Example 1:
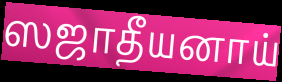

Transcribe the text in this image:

ஸஜாதீயனாய்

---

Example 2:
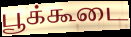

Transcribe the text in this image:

பூக்கூடை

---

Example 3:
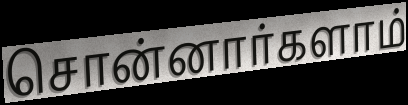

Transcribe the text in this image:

சொன்னார்களாம்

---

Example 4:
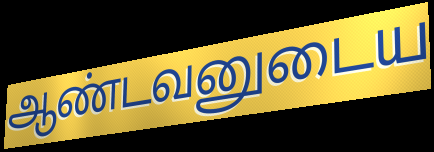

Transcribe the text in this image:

ஆண்டவனுடைய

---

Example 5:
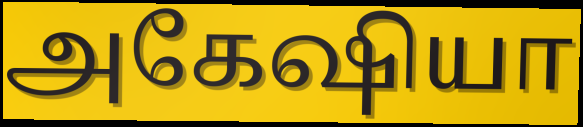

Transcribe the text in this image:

அகேஷியா